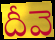
దీవె